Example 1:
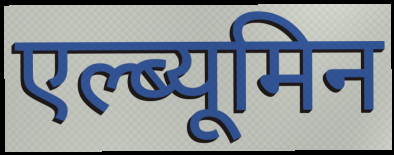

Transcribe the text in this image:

एल्ब्यूमिन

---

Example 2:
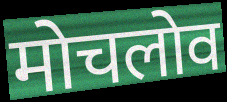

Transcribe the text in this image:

मोचलोव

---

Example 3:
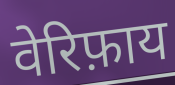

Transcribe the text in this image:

वेरिफ़ाय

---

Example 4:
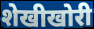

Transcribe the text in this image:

शेखीखोरी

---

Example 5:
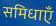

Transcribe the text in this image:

समिधाएँ